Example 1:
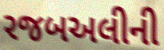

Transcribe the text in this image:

રજબઅલીની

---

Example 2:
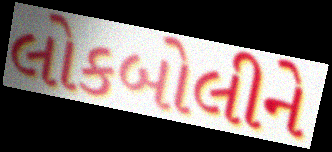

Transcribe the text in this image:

લોકબોલીને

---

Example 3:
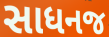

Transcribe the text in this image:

સાધનજ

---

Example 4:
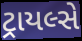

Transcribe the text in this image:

ટ્રાયલ્સે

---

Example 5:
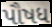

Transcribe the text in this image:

પૌષધ